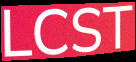
LCST